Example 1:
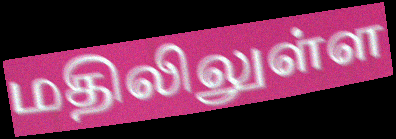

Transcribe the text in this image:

மதிலிலுள்ள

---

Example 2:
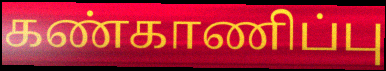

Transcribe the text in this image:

கண்காணிப்பு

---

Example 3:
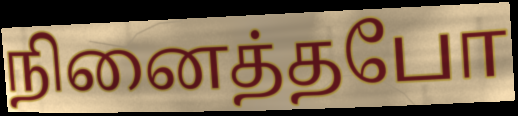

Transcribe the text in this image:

நினைத்தபோ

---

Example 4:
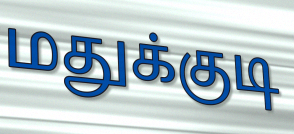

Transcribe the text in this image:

மதுக்குடி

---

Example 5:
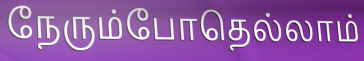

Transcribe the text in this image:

நேரும்போதெல்லாம்